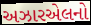
અઝારએલનો